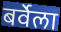
बर्वेला